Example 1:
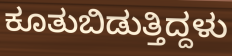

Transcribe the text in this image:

ಕೂತುಬಿಡುತ್ತಿದ್ದಳು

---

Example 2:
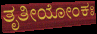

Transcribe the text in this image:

ತೃತೀಯೋಂಕಃ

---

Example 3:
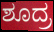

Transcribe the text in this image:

ಶೂದ್ರ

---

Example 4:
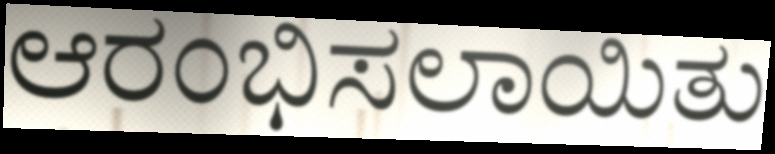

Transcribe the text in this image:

ಆರಂಭಿಸಲಾಯಿತು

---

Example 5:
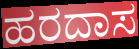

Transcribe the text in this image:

ಹರದಾಸ